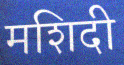
मशिदी